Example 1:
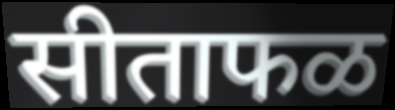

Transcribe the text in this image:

सीताफळ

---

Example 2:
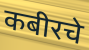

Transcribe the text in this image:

कबीरचे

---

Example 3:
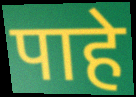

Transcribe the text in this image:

पाहे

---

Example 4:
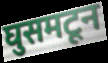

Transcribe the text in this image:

घुसमटून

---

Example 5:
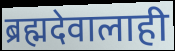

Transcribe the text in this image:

ब्रह्मदेवालाही